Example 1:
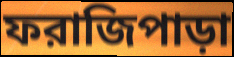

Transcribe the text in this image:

ফরাজিপাড়া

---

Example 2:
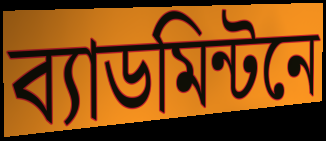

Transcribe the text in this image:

ব্যাডমিন্টনে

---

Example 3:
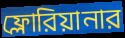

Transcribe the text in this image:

ফ্লোরিয়ানার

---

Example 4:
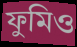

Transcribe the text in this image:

ফুমিও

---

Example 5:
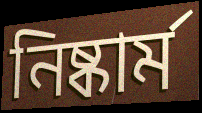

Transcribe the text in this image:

নিষ্কার্ম